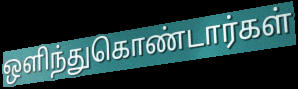
ஒளிந்துகொண்டார்கள்